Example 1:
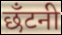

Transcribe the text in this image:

छँटनी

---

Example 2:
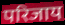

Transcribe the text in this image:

परिजाय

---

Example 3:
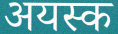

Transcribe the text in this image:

अयस्क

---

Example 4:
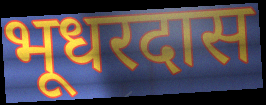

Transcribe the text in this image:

भूधरदास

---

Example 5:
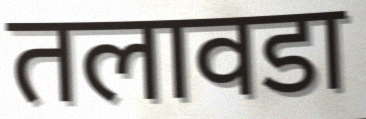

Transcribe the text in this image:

तलावडा